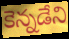
కెన్నడేని